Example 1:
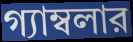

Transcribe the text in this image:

গ্যাম্বলার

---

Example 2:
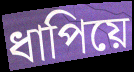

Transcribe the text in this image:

ধাপিয়ে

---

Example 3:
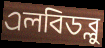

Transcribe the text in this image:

এলবিডব্লু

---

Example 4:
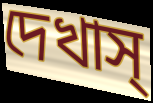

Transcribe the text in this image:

দেখাস্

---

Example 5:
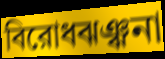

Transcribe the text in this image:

বিরোধঝঞ্ঝনা